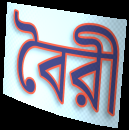
বৈরী